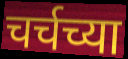
चर्चच्या